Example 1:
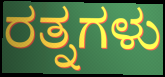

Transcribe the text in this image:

ರತ್ನಗಳು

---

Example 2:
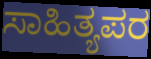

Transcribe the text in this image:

ಸಾಹಿತ್ಯಪರ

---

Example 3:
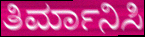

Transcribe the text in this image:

ತಿರ್ಮಾನಿಸಿ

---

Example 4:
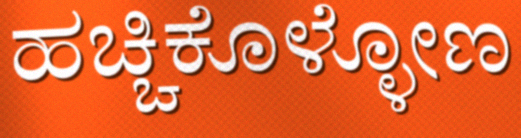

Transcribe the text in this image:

ಹಚ್ಚಿಕೊಳ್ಳೋಣ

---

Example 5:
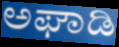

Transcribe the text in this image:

ಅಘಾಡಿ